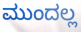
ಮುಂದಲ್ಲ